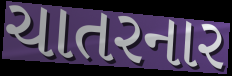
ચાતરનાર